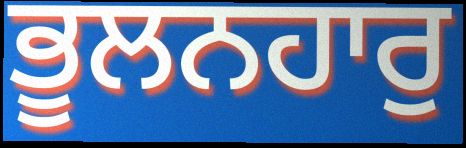
ਭੂਲਨਹਾਰੁ